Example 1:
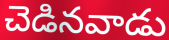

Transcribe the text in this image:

చెడినవాడు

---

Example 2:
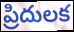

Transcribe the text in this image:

ప్రిదులక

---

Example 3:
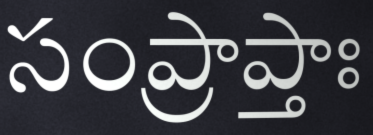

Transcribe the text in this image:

సంప్రాప్తాః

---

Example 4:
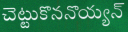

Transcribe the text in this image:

చెట్టుకొననొయ్యన్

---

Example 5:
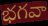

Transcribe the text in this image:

భగవా